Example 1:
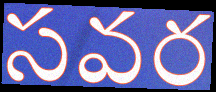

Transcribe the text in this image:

సవర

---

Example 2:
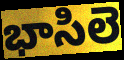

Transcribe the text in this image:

భాసిలె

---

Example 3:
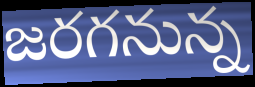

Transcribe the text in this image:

జరగనున్న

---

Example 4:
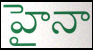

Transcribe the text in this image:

హైనా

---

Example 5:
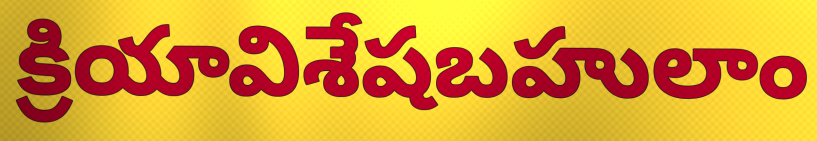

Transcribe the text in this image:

క్రియావిశేషబహులాం